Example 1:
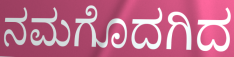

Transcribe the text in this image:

ನಮಗೊದಗಿದ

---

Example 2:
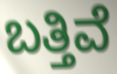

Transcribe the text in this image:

ಬತ್ತಿವೆ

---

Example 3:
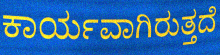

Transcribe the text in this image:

ಕಾರ್ಯವಾಗಿರುತ್ತದೆ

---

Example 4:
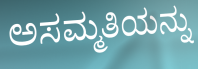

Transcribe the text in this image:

ಅಸಮ್ಮತಿಯನ್ನು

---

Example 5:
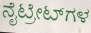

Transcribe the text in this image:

ನೈಟ್ರೇಟ್‌ಗಳ